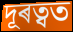
দূৰত্বত